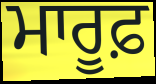
ਮਾਰੂਫ਼